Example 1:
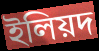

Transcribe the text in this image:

ইলিয়দ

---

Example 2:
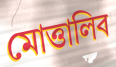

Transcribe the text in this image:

মোত্তালিব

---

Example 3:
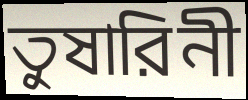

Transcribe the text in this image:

তুষারিনী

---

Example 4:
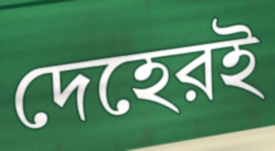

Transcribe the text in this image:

দেহেরই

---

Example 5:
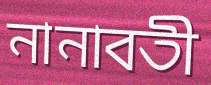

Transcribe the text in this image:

নানাবতী